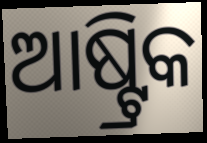
ଆଷ୍ଟ୍ରିକ